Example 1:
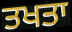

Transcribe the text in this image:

ਤਖਤਾ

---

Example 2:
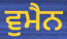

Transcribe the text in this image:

ਵੁਮੈਨ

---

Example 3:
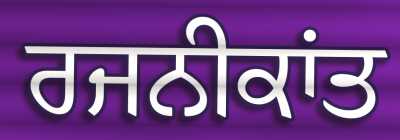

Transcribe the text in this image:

ਰਜਨੀਕਾਂਤ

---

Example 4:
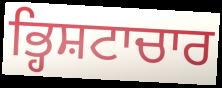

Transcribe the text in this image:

ਭ੍ਹਿਸ਼ਟਾਚਾਰ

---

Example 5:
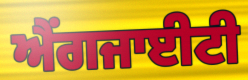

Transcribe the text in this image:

ਐਂਗਜਾਈਟੀ